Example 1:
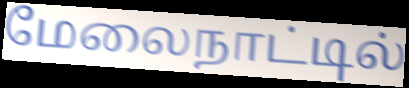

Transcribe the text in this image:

மேலைநாட்டில்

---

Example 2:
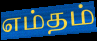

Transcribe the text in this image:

எம்தம்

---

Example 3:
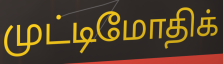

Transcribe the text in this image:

முட்டிமோதிக்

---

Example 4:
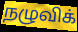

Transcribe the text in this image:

நழுவிக்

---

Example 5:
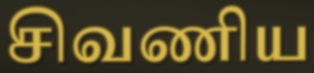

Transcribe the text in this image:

சிவணிய